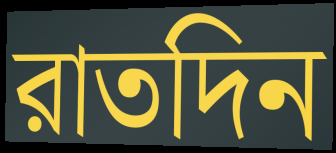
রাতদিন